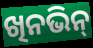
ଖିନଭିନ୍